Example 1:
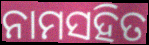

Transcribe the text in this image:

ନାମସହିତ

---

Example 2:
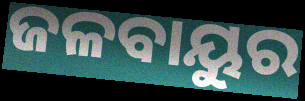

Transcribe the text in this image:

ଜଳବାୟୁର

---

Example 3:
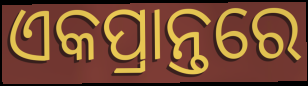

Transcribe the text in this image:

ଏକପ୍ରାନ୍ତରେ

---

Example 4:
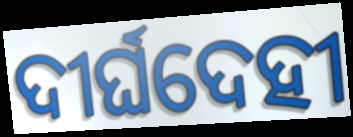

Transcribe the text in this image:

ଦୀର୍ଘଦେହୀ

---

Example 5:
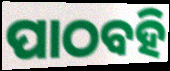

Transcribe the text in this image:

ପାଠବହି